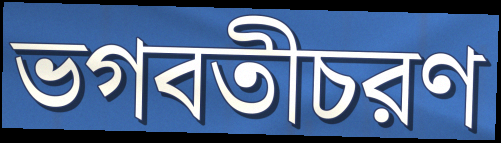
ভগবতীচরণ